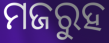
ମଜରୁହ